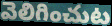
వెలిగించుట